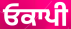
ਓਕਾਪੀ